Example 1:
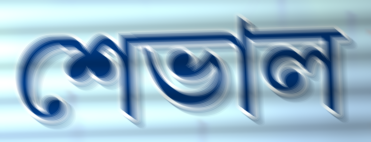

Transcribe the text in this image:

শেভাল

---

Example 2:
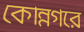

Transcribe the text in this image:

কোন্নগরে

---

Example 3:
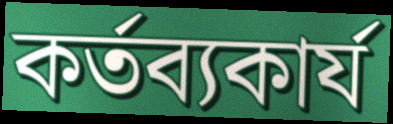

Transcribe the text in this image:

কর্তব্যকার্য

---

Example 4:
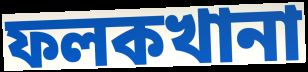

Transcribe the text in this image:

ফলকখানা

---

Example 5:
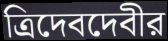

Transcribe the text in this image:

ত্রিদেবদেবীর